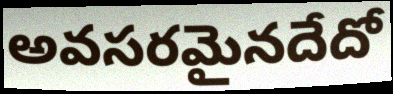
అవసరమైనదేదో